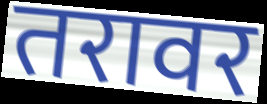
तरावर